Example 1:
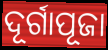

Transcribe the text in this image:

ଦୂର୍ଗାପୂଜା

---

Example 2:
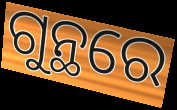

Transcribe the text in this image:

ଗୁନ୍ଥରେ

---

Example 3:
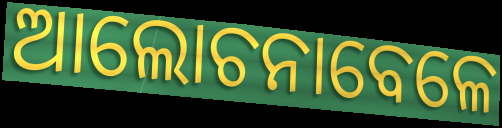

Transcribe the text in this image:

ଆଲୋଚନାବେଳେ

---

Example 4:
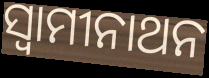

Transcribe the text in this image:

ସ୍ୱାମୀନାଥନ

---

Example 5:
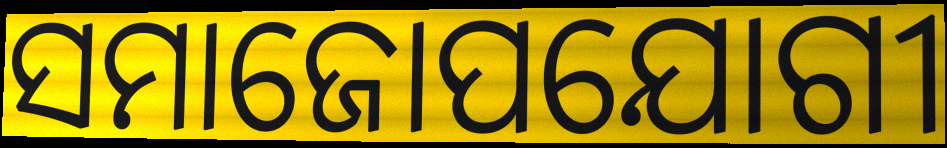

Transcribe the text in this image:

ସମାଜୋପଯୋଗୀ